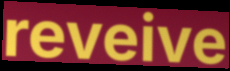
reveive